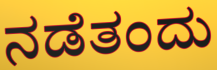
ನಡೆತಂದು